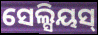
ସେଲ୍ସିୟସ୍